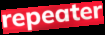
repeater